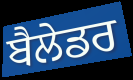
ਬੈਲੇਡਰ